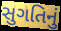
સુગતિનું